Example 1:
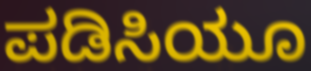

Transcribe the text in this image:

ಪಡಿಸಿಯೂ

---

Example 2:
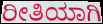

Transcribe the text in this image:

ರೀತಿಯಾಗಿ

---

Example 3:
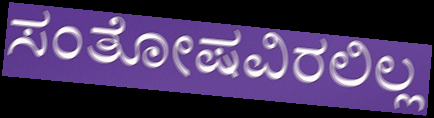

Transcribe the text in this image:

ಸಂತೋಷವಿರಲಿಲ್ಲ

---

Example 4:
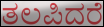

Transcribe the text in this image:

ತಲಪಿದರೆ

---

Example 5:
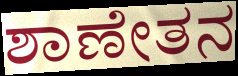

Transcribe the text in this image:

ಶಾಣೇತನ